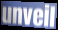
unveil